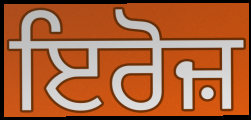
ਇਰੋਜ਼